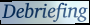
Debriefing